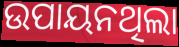
ଉପାୟନଥିଲା